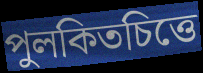
পুলকিতচিত্তে